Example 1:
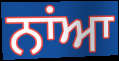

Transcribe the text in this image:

ਨਾਂਆ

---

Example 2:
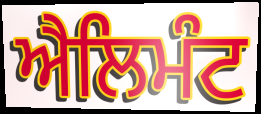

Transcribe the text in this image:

ਐਲਿਮੰਟ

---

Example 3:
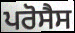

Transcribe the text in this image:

ਪਰੋਸੈਸ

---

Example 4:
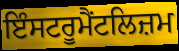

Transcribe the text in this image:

ਇੰਸਟਰੂਮੈਂਟਲਿਜ਼ਮ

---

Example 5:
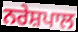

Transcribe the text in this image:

ਨਰੇਸ਼ਪਾਲ